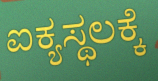
ಐಕ್ಯಸ್ಥಲಕ್ಕೆ